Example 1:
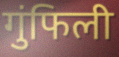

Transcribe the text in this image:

गुंफिली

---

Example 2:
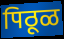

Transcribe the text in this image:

पिठूळ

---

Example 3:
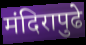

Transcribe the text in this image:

मंदिरापुढे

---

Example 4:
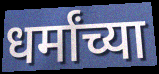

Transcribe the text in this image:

धर्मांच्या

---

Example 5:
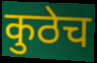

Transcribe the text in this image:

कुठेच